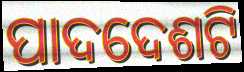
ପାଦଦେଶଟି